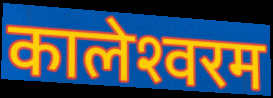
कालेश्वरम